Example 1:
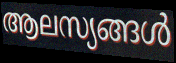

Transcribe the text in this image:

ആലസ്യങ്ങൾ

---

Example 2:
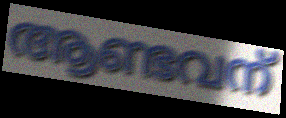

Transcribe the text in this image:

ആണ്ടവന്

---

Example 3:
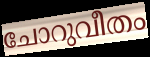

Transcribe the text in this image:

ചോറുവീതം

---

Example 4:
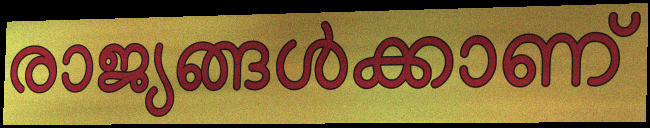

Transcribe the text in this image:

രാജ്യങ്ങൾക്കാണ്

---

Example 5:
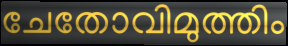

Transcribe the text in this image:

ചേതോവിമുത്തിം